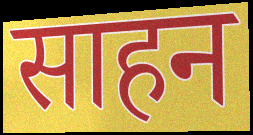
साहन